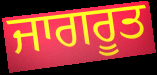
ਜਾਗਰੂਤ